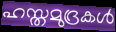
ഹസ്തമുദ്രകൾ